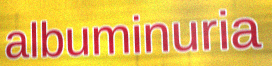
albuminuria